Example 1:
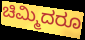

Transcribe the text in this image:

ಚಿಮ್ಮಿದರೂ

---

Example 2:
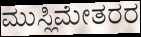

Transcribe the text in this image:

ಮುಸ್ಲಿಮೇತರರ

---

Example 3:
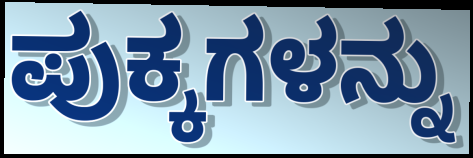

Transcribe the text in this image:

ಪುಕ್ಕಗಳನ್ನು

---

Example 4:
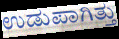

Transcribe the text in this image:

ಉಡುಪಾಗಿತ್ತು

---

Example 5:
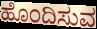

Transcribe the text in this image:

ಹೊಂದಿಸುವ